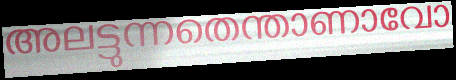
അലട്ടുന്നതെന്താണാവോ